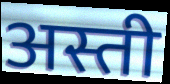
अस्ती